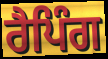
ਰੈਪਿੰਗ